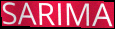
SARIMA